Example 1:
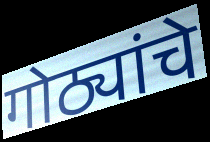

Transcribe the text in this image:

गोठ्यांचे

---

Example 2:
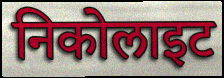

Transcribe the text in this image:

निकोलाइट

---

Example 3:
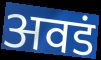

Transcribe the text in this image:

अवडं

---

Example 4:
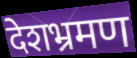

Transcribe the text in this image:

देशभ्रमण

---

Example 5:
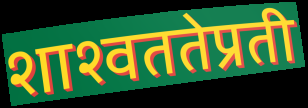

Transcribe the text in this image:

शाश्वततेप्रती